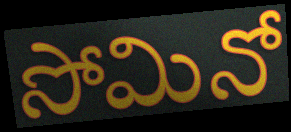
సోమినో